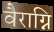
वैराग्नि